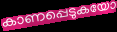
കാണപ്പെടുകയോ